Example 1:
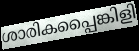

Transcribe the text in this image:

ശാരികപ്പൈങ്കിളി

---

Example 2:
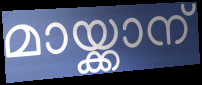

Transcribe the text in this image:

മായ്ക്കാന്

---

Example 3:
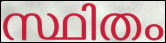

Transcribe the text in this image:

സ്ഥിതം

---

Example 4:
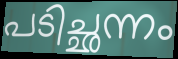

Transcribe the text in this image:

പടിച്ഛന്നം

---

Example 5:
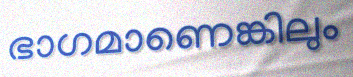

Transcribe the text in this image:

ഭാഗമാണെങ്കിലും